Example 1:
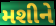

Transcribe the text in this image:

મશીને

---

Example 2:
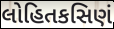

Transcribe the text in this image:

લોહિતકસિણં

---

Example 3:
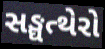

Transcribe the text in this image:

સઙ્ઘત્થેરો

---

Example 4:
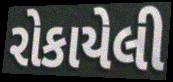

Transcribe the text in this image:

રોકાયેલી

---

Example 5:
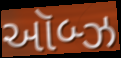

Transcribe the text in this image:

ઑબ્ઝ